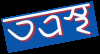
তত্রস্থ